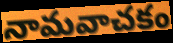
నామవాచకం